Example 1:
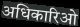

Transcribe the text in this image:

अधिकारिओ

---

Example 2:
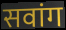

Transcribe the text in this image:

सवांग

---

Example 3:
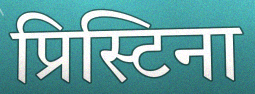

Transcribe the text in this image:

प्रिस्टिना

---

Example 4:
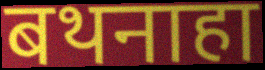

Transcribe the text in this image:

बथनाहा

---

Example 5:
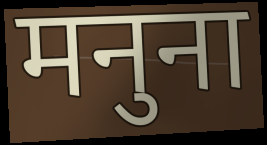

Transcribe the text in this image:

मनुना